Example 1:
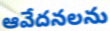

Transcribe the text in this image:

ఆవేదనలను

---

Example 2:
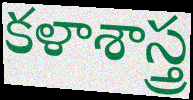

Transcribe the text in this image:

కళాశాస్త్ర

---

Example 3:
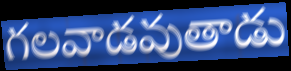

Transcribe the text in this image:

గలవాడవుతాడు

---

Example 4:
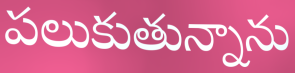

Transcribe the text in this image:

పలుకుతున్నాను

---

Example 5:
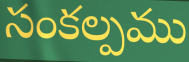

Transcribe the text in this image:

సంకల్పము